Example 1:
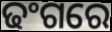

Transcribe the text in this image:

ଢଂଗରେ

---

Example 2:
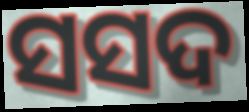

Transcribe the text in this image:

ସସଦ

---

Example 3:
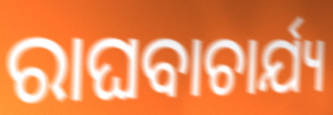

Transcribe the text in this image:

ରାଘବାଚାର୍ଯ୍ୟ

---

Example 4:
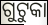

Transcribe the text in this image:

ଗୁଟୁକା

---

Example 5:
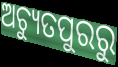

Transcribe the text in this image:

ଅଚ୍ୟୁତପୁରରୁ